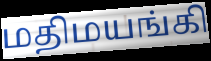
மதிமயங்கி